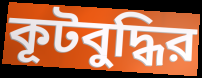
কূটবুদ্ধির